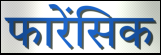
फारेंसिक